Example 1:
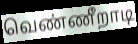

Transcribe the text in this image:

வெண்ணீறாடி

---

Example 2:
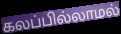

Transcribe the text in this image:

கலப்பில்லாமல்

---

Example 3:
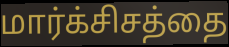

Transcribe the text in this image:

மார்க்சிசத்தை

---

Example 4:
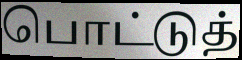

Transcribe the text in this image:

பொட்டுத்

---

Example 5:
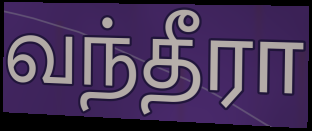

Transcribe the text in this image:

வந்தீரா